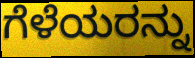
ಗೆಳೆಯರನ್ನು